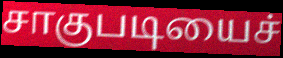
சாகுபடியைச்